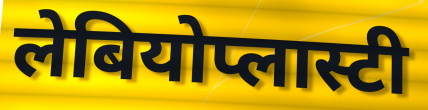
लेबियोप्लास्टी